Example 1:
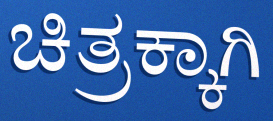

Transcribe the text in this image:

ಚಿತ್ರಕ್ಕಾಗಿ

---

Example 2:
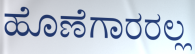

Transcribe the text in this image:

ಹೊಣೆಗಾರರಲ್ಲ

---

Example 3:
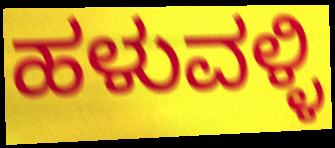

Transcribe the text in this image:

ಹಳುವಳ್ಳಿ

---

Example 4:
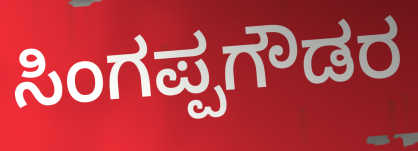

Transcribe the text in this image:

ಸಿಂಗಪ್ಪಗೌಡರ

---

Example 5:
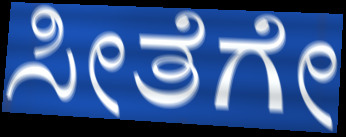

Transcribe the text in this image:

ಸೀತೆಗೇ